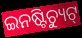
ଇନଷ୍ଟିଚ୍ୟୁଟ୍